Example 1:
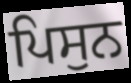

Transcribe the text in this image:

ਪਿਸੁਨ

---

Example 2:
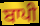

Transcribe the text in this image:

ਬਾਪੀ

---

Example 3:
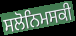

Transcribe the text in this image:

ਸਲੋਨਿਮਸਕੀ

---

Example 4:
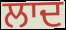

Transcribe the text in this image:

ਲਾਦ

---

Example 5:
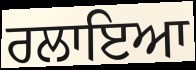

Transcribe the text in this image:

ਰਲਾਇਆ